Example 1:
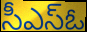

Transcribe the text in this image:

సీఎస్ఓ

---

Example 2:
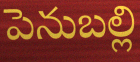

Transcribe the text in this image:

పెనుబల్లి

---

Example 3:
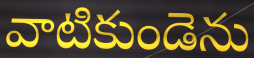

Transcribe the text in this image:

వాటికుండెను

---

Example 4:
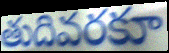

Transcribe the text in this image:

తుదివరకూ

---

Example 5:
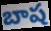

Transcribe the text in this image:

బాష